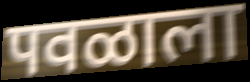
पवळाला